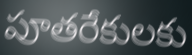
పూతరేకులకు